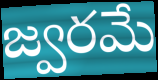
జ్వరమే